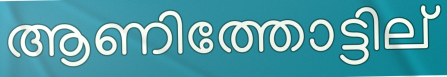
ആണിത്തോട്ടില്